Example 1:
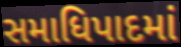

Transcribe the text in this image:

સમાધિપાદમાં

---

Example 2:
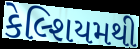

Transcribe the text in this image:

કેલ્શિયમથી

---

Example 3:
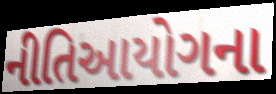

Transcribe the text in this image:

નીતિઆયોગના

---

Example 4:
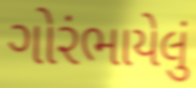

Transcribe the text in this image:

ગોરંભાયેલું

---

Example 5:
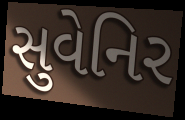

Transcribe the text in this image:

સુવેનિર